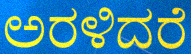
ಅರಳಿದರೆ